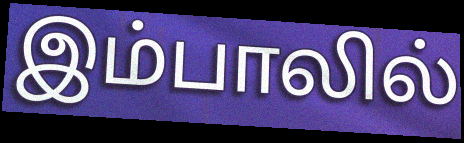
இம்பாலில்